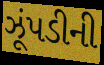
ઝૂંપડીની